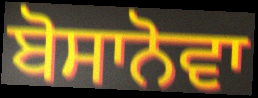
ਬੋਸਾਨੋਵਾ